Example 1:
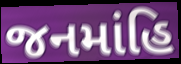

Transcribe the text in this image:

જનમાંહિ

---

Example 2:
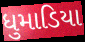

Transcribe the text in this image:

ધુમાડિયા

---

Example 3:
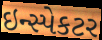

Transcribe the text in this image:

ઇન્સ્પેકટર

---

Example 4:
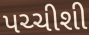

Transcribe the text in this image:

પચ્ચીશી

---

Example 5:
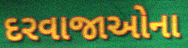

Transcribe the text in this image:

દરવાજાઓના